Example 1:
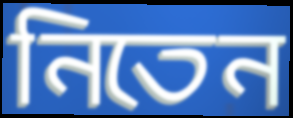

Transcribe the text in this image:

নিতেন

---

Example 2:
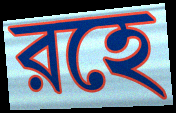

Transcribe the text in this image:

রহে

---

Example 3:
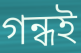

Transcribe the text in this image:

গন্ধই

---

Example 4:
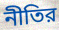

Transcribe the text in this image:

নীতির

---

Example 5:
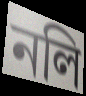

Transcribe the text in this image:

নলি